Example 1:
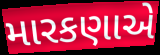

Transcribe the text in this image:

મારકણાએ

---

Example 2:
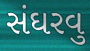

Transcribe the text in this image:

સંઘરવુ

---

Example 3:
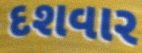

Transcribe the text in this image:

દશવાર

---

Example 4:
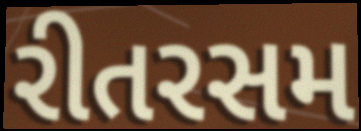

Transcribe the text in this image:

રીતરસમ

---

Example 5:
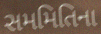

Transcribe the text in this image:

સમમિતિના